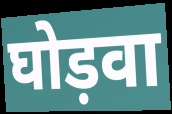
घोड़वा